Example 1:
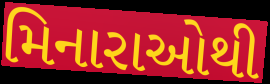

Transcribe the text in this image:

મિનારાઓથી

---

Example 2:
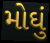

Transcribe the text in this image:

મોઘું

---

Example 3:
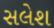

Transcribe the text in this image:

સલેશ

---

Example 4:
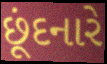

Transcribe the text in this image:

છૂંદનારે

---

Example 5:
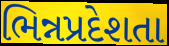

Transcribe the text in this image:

ભિન્નપ્રદેશતા